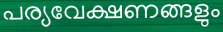
പര്യവേക്ഷണങ്ങളും